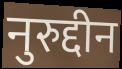
नुरुद्दीन